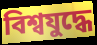
বিশ্বযুদ্ধে